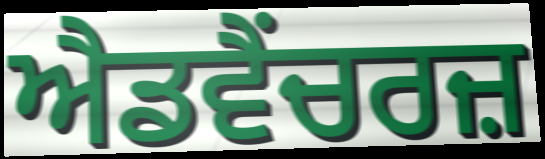
ਐਡਵੈਂਚਰਜ਼